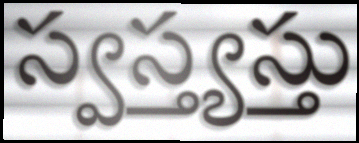
స్వస్త్యస్తు